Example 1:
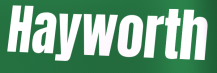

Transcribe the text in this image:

Hayworth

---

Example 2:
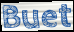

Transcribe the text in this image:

Buet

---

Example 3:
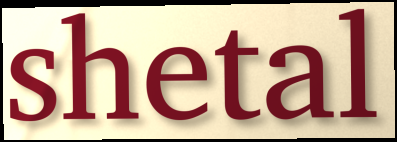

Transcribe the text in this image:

shetal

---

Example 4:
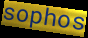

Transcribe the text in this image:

sophos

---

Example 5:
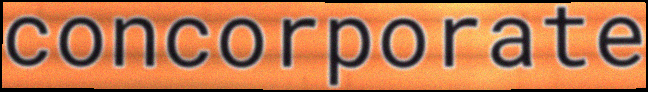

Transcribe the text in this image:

concorporate